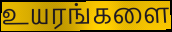
உயரங்களை